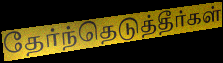
தேர்ந்தெடுத்தீர்கள்